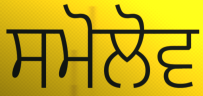
ਸਮੋਲੋਵ